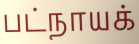
பட்நாயக்